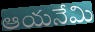
ఆయనేమి